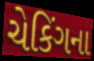
ચેકિંગના